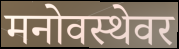
मनोवस्थेवर